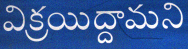
విక్రయిద్దామని